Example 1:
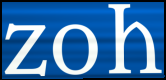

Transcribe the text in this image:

zoh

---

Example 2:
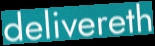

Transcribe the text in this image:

delivereth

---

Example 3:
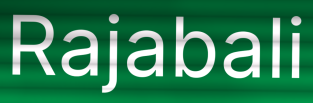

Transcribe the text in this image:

Rajabali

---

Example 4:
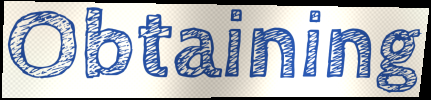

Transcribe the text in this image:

Obtaining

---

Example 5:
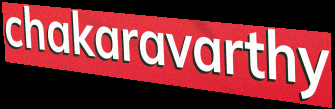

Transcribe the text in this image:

chakaravarthy